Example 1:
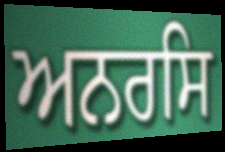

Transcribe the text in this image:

ਅਨਰਸਿ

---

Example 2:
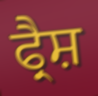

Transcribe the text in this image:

ਫ੍ਰੈਸ਼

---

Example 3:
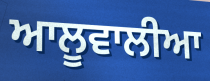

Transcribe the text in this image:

ਆਲੂਵਾਲੀਆ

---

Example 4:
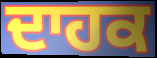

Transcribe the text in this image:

ਦਾਹਕ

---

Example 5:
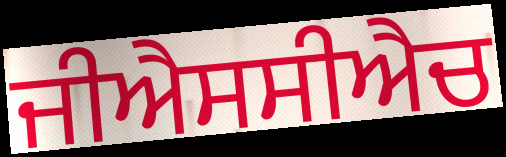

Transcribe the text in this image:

ਜੀਐਸਸੀਐਚ